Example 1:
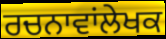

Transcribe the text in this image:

ਰਚਨਾਵਾਂਲੇਖਕ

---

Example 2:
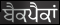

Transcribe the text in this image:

ਬੈਕਪੈਕਾਂ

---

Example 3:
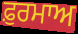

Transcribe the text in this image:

ਫ਼ੁਰਮਾਅ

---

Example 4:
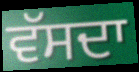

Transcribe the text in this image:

ਵੱਸਦਾ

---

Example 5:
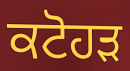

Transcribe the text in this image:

ਕਟੋਹੜ